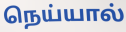
நெய்யால்